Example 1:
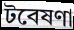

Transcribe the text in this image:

টবেষণা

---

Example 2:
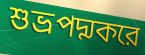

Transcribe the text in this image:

শুভ্রপদ্মকরে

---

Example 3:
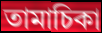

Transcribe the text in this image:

তামাচিকা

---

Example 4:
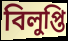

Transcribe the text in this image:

বিলুপ্তি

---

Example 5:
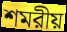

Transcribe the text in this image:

শমরীয়